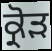
ਕ੍ਰੋੜ